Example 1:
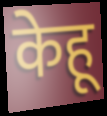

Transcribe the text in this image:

केहू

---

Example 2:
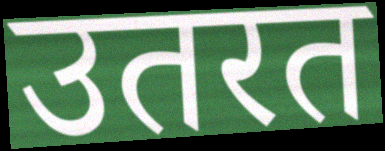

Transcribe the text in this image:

उतरत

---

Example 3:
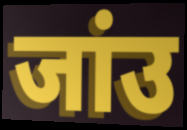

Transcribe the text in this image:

जांउ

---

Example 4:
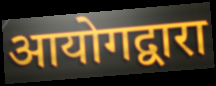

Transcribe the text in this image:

आयोगद्वारा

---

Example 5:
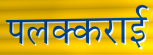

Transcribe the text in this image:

पलक्कराई